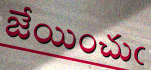
జేయించుఁ